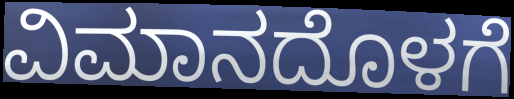
ವಿಮಾನದೊಳಗೆ